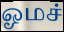
ஓமச்